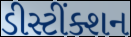
ડીસ્ટીંક્શન